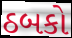
ઠબકો